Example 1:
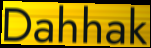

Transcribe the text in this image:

Dahhak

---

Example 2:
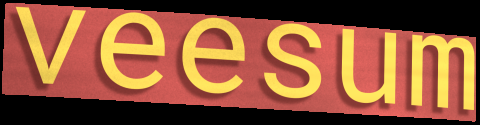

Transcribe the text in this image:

veesum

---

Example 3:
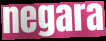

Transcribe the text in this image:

negara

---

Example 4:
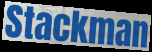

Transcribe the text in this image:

Stackman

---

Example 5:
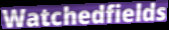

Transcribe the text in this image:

Watchedfields